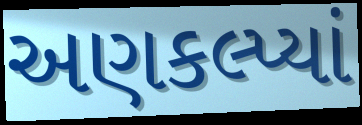
અણકલ્પ્યાં